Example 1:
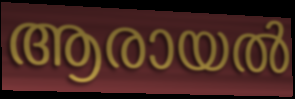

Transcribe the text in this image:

ആരായൽ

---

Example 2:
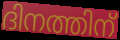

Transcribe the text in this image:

ദിനത്തിന്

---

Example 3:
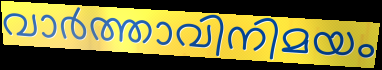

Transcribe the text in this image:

വാർത്താവിനിമയം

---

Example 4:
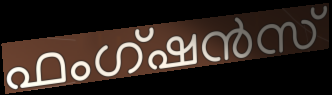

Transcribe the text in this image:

ഫംഗ്ഷൻസ്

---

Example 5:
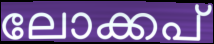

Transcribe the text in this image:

ലോക്കപ്